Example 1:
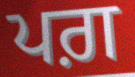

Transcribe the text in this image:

ਪਗ਼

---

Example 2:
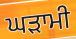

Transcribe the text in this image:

ਘੜਾਮੀ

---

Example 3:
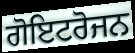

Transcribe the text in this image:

ਗੋਇਟਰੋਜਨ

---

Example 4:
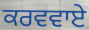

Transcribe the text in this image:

ਕਰਵਵਾਏ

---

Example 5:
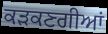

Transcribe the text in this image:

ਕੜਕਣਗੀਆਂ